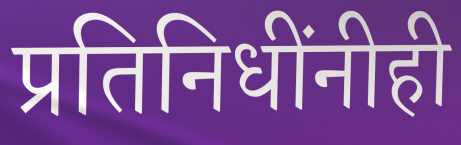
प्रतिनिधींनीही